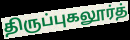
திருப்புகலூர்த்